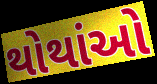
થોથાંઓ